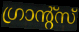
ഗ്രാന്റ്സ്